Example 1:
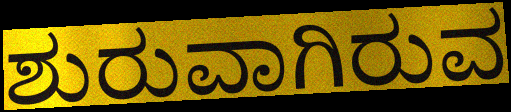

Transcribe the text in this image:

ಶುರುವಾಗಿರುವ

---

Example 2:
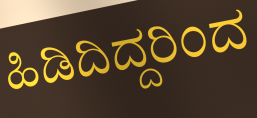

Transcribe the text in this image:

ಹಿಡಿದಿದ್ದರಿಂದ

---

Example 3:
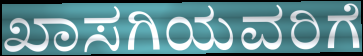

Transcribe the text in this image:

ಖಾಸಗಿಯವರಿಗೆ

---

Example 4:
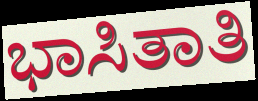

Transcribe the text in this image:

ಭಾಸಿತಾತಿ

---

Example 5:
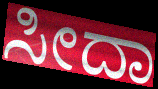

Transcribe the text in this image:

ಸೀದಾ